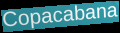
Copacabana